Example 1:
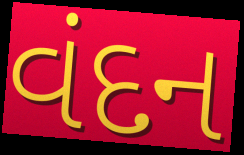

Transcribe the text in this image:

વંદન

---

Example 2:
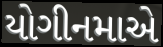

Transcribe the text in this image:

યોગીનમાએ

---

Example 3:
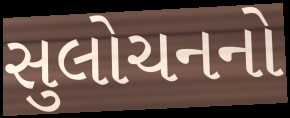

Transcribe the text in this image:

સુલોચનનો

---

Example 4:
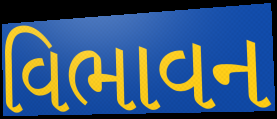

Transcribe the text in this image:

વિભાવન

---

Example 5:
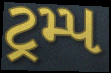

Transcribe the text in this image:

ટ્રમ્પ